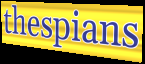
thespians